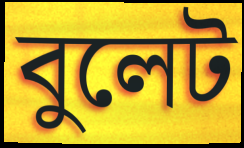
বুলেট